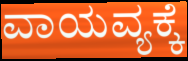
ವಾಯವ್ಯಕ್ಕೆ